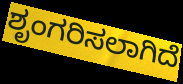
ಶೃಂಗರಿಸಲಾಗಿದೆ